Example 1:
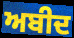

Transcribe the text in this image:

ਅਬੀਦ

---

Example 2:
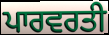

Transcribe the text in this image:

ਪਾਰਵਰਤੀ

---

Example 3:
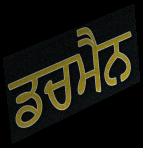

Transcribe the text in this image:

ਡਚਮੈਨ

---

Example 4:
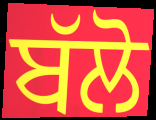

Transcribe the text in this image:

ਬੱਲੋ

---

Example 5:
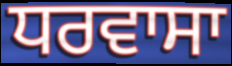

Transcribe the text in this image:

ਧਰਵਾਸਾ